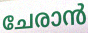
ചേരാൻ